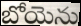
బోయెను